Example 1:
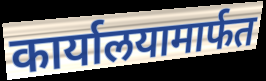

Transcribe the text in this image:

कार्यालयामार्फत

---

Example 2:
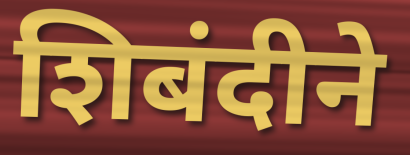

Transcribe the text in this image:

शिबंदीने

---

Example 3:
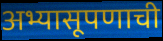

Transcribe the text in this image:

अभ्यासूपणाची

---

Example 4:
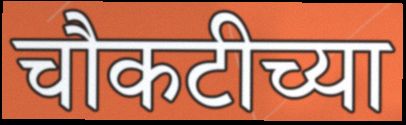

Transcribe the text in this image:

चौकटीच्या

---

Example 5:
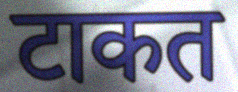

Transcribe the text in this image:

टाकत